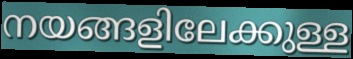
നയങ്ങളിലേക്കുള്ള